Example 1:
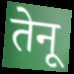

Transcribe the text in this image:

तेनू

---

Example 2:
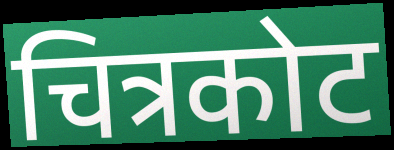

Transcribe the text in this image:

चित्रकोट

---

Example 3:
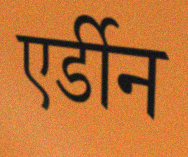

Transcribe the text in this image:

एर्डीन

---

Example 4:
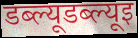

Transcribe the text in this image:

डब्ल्यूडब्ल्यूइ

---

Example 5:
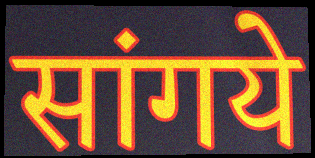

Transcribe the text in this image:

सांगये